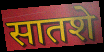
सातशे